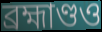
ব্রহ্মাণ্ডও